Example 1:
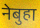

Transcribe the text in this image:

नेबुहा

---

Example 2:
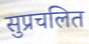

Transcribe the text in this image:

सुप्रचलित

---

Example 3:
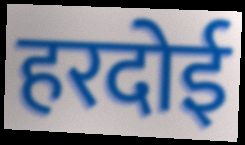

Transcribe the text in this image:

हरदोई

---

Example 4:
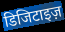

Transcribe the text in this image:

डिजिटाइज़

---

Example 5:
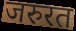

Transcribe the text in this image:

जरुरत